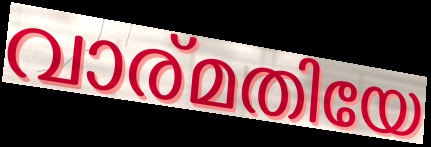
വാര്മതിയേ